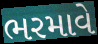
ભરમાવે